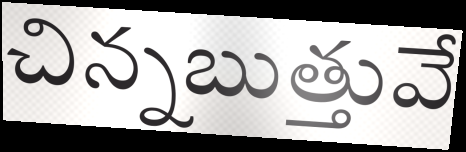
చిన్నబుత్తువే